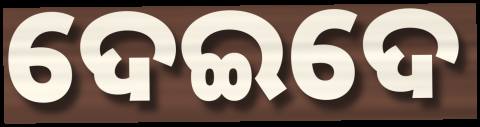
ଦେଇଦେ